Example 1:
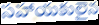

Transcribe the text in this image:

సహాయకులైన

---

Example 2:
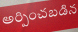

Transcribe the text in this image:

అర్పించబడిన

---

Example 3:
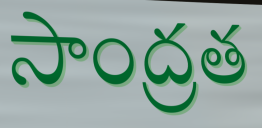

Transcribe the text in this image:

సాంద్రత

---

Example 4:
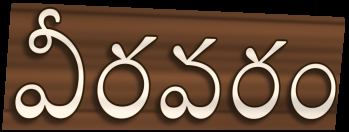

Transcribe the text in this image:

వీరవరం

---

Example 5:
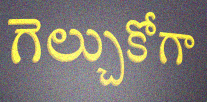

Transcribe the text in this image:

గెల్చుకోగా